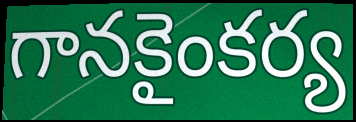
గానకైంకర్య